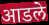
आडले